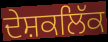
ਦੇਸ਼ਕਲਿੱਕ